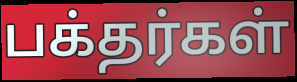
பக்தர்கள்